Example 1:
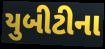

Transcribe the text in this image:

યુબીટીના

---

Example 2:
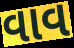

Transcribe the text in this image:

વાવ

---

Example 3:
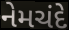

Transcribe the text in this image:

નેમચંદે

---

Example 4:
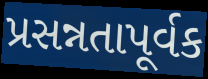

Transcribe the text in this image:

પ્રસન્નતાપૂર્વક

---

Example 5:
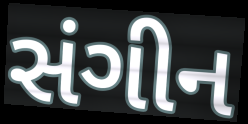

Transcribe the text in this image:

સંગીન